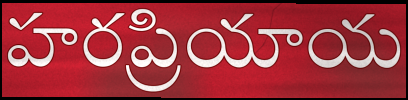
హరప్రియాయ